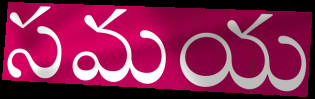
సమయ